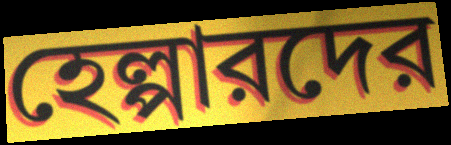
হেল্পারদের